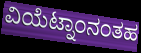
ವಿಯೆಟ್ನಾಂನಂತಹ